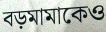
বড়মামাকেও